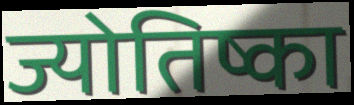
ज्योतिष्का